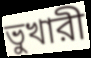
ভুখারী